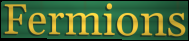
Fermions